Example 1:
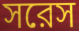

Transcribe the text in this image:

সরেস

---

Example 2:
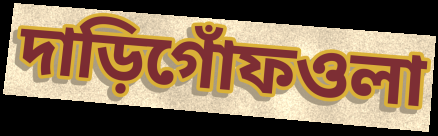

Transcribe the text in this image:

দাড়িগোঁফওলা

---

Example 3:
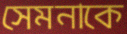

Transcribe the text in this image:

সেমনাকে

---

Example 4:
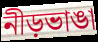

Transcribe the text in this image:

নীড়ভাঙা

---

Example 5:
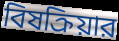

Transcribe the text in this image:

বিষক্রিয়ার